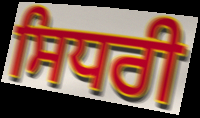
ਸਿਧਰੀ